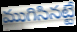
ముగిసినట్టే